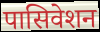
पासिवेशन